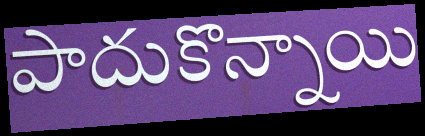
పాదుకొన్నాయి